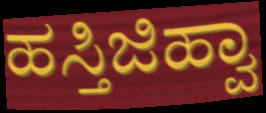
ಹಸ್ತಿಜಿಹ್ವಾ